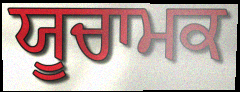
ਯੂਚਾਮਕ